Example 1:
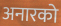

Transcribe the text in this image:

अनारको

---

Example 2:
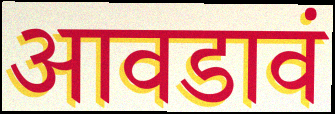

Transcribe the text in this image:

आवडावं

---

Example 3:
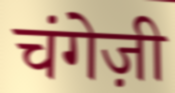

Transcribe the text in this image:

चंगेज़ी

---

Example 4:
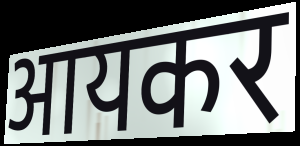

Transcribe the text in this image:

आयकर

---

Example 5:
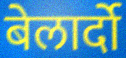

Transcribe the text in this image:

बेलार्दो